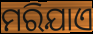
ମରିଯାଏ